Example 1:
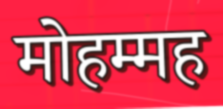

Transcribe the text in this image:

मोहम्मह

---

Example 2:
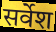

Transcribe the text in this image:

सर्वेश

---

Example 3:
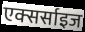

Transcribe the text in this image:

एक्सर्साइज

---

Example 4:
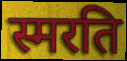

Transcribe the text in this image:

स्मरति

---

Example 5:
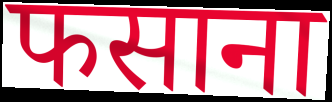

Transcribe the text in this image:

फसाना